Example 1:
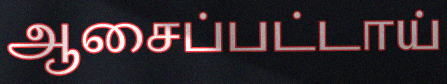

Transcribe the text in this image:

ஆசைப்பட்டாய்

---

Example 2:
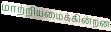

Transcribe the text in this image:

மாற்றியமைக்கின்றன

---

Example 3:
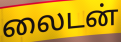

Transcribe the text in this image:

லைடன்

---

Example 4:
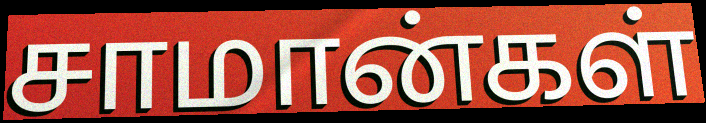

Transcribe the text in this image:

சாமான்கள்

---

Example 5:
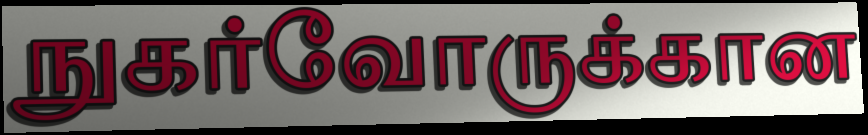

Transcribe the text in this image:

நுகர்வோருக்கான